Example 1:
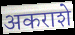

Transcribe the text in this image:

अकराशे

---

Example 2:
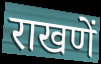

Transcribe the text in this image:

राखणें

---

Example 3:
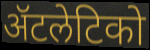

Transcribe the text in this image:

ॲटलेटिको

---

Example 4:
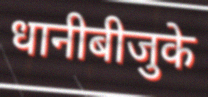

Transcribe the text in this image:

धानीबीजुके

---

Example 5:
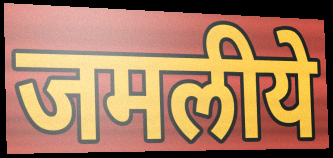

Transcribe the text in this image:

जमलीये